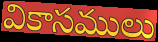
వికాసములు